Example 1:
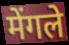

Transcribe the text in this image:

मेंगले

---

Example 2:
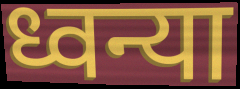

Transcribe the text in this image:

ध्वन्या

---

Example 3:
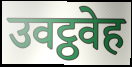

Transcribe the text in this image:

उवट्ठवेह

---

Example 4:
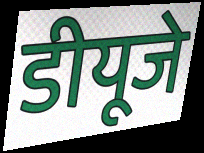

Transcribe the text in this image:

डीयूजे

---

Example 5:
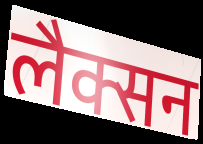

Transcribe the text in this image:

लैक्सन